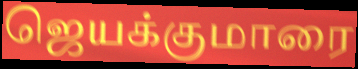
ஜெயக்குமாரை